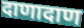
दाणादाण